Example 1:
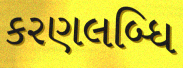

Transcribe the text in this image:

કરણલબ્ધિ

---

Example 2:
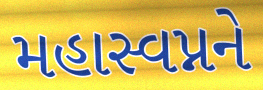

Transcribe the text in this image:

મહાસ્વપ્નને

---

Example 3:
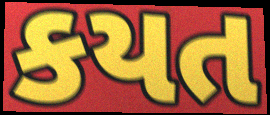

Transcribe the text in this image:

કયત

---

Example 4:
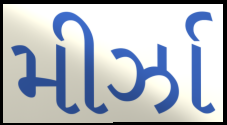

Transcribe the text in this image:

મીર્ઝા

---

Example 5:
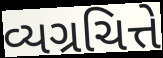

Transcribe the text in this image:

વ્યગ્રચિત્તે